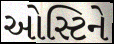
ઓસ્ટિને